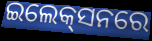
ଇଲେକ୍‍ସନରେ